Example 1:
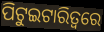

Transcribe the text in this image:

ପିଟୁଇଟାରିତ୍ୱରେ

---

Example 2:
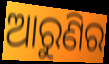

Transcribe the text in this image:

ଆରୁଣିର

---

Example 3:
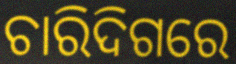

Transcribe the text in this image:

ଚାରିଦିଗରେ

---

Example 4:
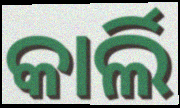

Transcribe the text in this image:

କାର୍ଲି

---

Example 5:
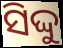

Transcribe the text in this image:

ସିଦ୍ଦୁ